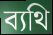
ব্যথি